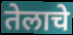
तेलाचे